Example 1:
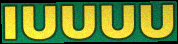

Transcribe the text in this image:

IUUUU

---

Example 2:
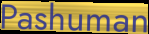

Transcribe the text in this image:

Pashuman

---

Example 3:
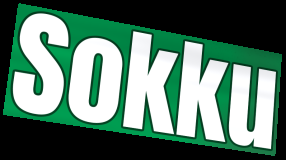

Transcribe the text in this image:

Sokku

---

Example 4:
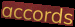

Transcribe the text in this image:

accords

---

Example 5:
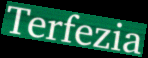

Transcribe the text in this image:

Terfezia